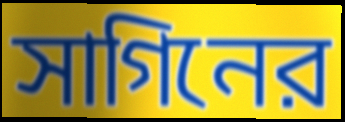
সাগিনের